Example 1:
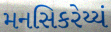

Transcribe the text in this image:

મનસિકરેય્યં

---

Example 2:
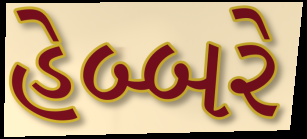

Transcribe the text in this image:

હેબ્બરે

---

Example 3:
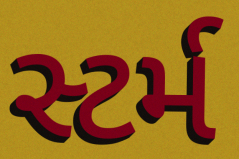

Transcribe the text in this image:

સ્ટર્મ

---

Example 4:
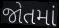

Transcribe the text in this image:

જોતમાં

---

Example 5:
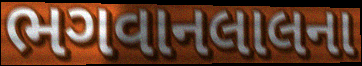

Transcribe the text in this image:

ભગવાનલાલના